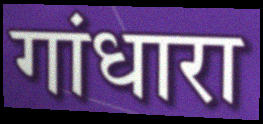
गांधारा